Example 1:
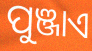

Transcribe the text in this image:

ପୁଞ୍ଜାଏ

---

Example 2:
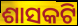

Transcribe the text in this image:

ଶାସକଟି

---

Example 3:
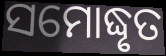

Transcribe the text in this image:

ସମୋଦ୍ଧୃତ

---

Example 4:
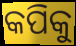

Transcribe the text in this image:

କପିକୁ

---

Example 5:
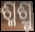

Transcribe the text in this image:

ଶ୍ମଶ୍ରୁ